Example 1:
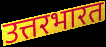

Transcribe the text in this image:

उत्तरभारत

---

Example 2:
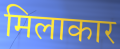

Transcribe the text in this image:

मिलाकार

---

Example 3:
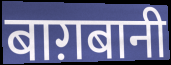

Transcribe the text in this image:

बाग़बानी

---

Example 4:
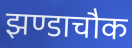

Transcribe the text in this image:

झण्डाचौक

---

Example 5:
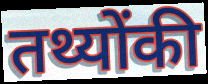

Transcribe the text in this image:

तथ्योंकी